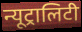
न्यूट्रालिटी